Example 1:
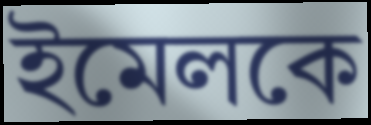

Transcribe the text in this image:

ইমেলকে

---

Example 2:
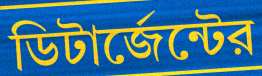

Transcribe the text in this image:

ডিটার্জেন্টের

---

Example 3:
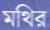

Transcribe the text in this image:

মথির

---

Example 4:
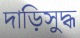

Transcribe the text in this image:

দাড়িসুদ্ধ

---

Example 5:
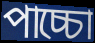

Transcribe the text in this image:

পাচ্চো